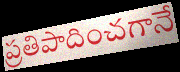
ప్రతిపాదించగానే